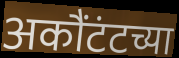
अकौंटंटच्या